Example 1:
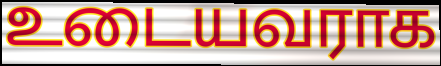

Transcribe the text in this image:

உடையவராக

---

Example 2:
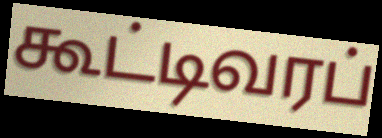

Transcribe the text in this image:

கூட்டிவரப்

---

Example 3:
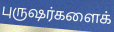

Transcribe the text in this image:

புருஷர்களைக்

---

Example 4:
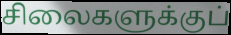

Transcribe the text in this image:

சிலைகளுக்குப்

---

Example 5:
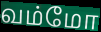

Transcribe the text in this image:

வம்மோ